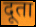
दूता